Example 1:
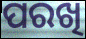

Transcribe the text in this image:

ପରଖି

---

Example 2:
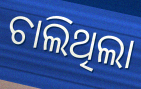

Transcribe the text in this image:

ଚାଲିଥିଲା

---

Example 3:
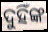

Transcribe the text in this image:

ଦୁହିଁଙ୍କ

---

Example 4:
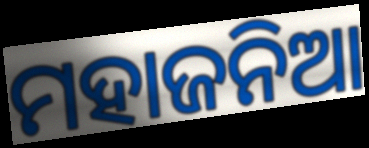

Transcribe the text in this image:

ମହାଜନିଆ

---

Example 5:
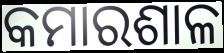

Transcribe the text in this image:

କମାରଶାଳ